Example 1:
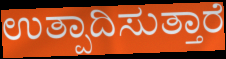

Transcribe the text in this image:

ಉತ್ಪಾದಿಸುತ್ತಾರೆ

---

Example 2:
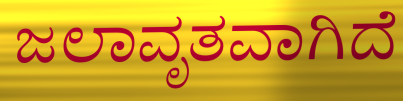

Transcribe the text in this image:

ಜಲಾವೃತವಾಗಿದೆ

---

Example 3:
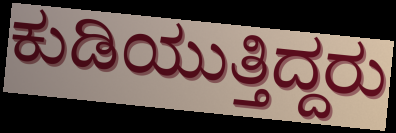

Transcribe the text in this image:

ಕುಡಿಯುತ್ತಿದ್ದರು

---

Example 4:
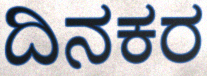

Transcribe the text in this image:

ದಿನಕರ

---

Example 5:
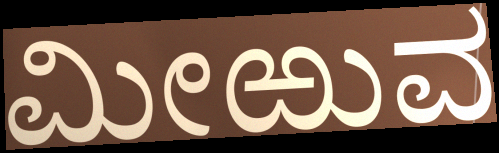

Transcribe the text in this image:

ಮೀಱುವ